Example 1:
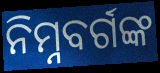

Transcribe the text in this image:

ନିମ୍ନବର୍ଗଙ୍କ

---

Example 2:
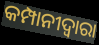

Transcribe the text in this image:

କମ୍ପାନୀଦ୍ୱାରା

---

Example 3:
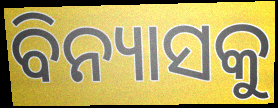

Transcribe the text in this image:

ବିନ୍ୟାସକୁ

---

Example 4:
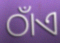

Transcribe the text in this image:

ଠାଁଏ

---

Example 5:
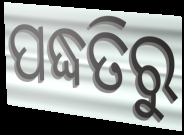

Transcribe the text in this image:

ପଦ୍ଧତିରୁ